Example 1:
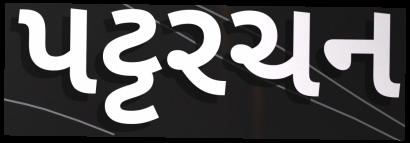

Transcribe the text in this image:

પટ્ટરચન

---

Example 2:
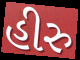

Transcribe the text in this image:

હીરુ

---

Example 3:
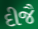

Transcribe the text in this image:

દીજૈ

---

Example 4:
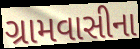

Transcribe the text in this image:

ગ્રામવાસીના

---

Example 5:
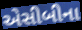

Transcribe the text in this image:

એસીબીના